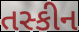
તસ્કીન